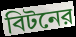
বিটনের